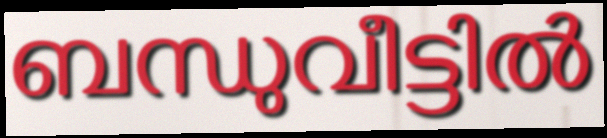
ബന്ധുവീട്ടിൽ